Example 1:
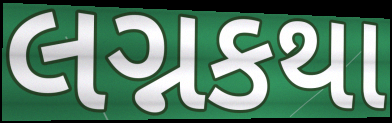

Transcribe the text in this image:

લગ્નકથા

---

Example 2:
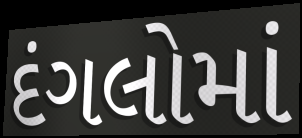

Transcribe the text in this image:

દંગલોમાં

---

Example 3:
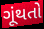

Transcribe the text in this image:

ગૂંથતો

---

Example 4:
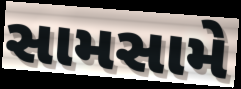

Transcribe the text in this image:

સામસામે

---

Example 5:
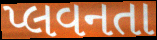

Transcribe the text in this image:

પ્લવનતા